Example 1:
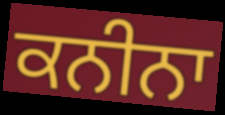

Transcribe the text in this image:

ਕਨੀਨਾ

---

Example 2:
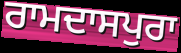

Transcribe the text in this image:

ਰਾਮਦਾਸਪੁਰਾ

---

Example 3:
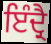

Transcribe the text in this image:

ਇੰਦ੍ਰੈ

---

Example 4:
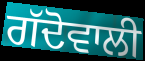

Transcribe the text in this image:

ਗੱਦੋਵਾਲੀ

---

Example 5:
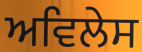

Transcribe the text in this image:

ਅਵਿਲੇਸ